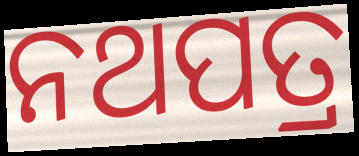
ନଥପତ୍ର